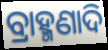
ବ୍ରାହ୍ମଣାଦି